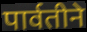
पार्वतीने